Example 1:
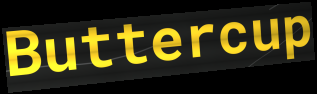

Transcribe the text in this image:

Buttercup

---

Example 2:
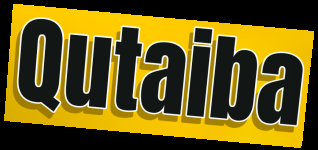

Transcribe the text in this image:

Qutaiba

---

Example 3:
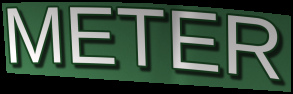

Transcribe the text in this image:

METER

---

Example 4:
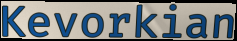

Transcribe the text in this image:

Kevorkian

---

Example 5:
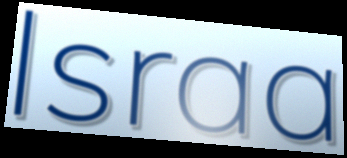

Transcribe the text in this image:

Israa